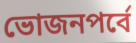
ভোজনপর্বে